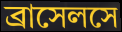
ব্রাসেলসে